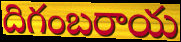
దిగంబరాయ